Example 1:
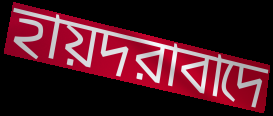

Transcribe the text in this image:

হায়দরাবাদে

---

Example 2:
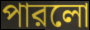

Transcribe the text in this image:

পারলো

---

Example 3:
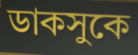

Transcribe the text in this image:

ডাকসুকে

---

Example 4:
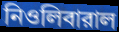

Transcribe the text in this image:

নিওলিবারাল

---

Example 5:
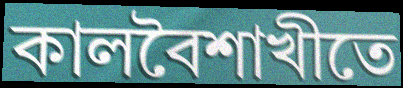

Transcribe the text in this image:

কালবৈশাখীতে